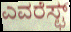
ಎವರೆಸ್ಟ್